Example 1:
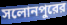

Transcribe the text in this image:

সলোনপুরের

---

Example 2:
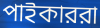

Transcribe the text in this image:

পাইকাররা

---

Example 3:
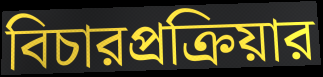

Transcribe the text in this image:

বিচারপ্রক্রিয়ার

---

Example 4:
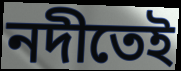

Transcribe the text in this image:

নদীতেই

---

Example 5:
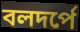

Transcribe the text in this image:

বলদর্পে